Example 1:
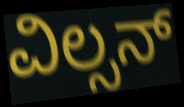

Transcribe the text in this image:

ವಿಲ್ಸನ್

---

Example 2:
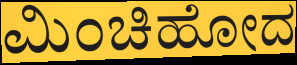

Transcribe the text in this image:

ಮಿಂಚಿಹೋದ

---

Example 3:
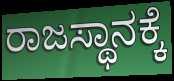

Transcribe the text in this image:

ರಾಜಸ್ಥಾನಕ್ಕೆ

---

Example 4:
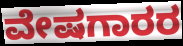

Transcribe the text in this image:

ವೇಷಗಾರರ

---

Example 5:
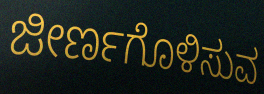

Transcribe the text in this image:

ಜೀರ್ಣಗೊಳಿಸುವ